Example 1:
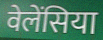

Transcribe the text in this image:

वेलेंसिया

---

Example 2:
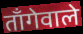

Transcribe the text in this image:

ताँगेवाले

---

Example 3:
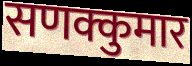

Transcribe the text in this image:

सणक्कुमार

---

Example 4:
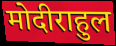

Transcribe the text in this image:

मोदीराहुल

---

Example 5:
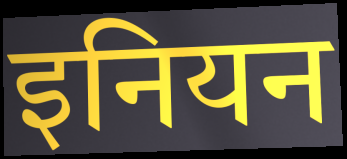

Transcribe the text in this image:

इनियन